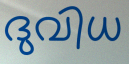
ദുവിധ